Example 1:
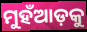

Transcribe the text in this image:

ମୁହଁଆଡ଼କୁ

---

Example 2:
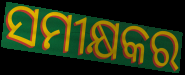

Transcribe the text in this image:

ସମୀକ୍ଷକର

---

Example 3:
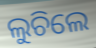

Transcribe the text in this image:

ଲୁଚିଲେ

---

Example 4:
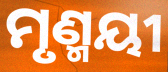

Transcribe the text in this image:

ମୃଣ୍ମୟୀ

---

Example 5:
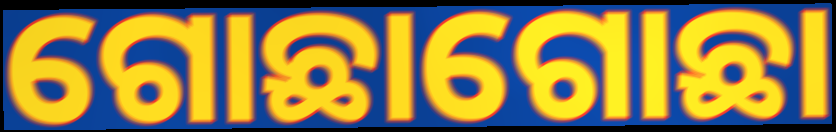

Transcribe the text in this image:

ଗୋଛାଗୋଛା